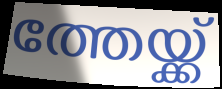
ത്തേയ്ക്ക്